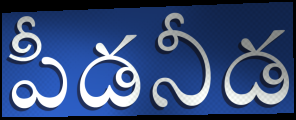
పీడనీడ